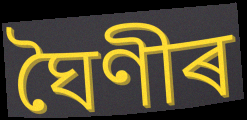
ঘৈণীৰ